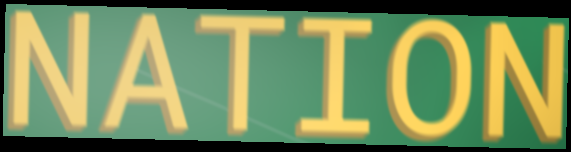
NATION